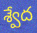
శ్వేద